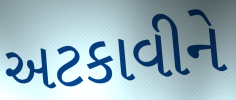
અટકાવીને